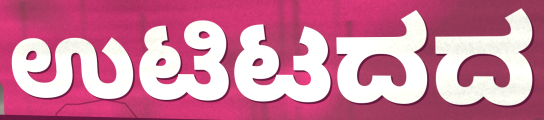
ಉಟಿಟದದ